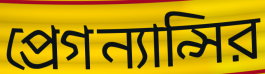
প্রেগন্যান্সির